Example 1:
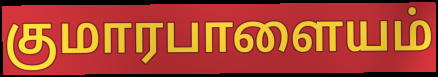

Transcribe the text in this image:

குமாரபாளையம்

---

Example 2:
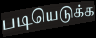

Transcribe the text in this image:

படியெடுக்க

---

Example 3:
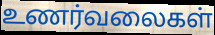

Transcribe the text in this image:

உணர்வலைகள்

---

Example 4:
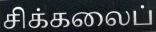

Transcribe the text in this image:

சிக்கலைப்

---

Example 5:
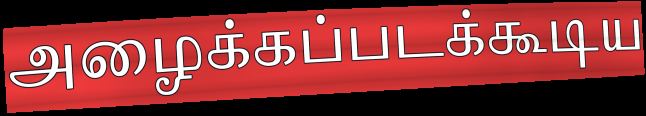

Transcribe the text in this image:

அழைக்கப்படக்கூடிய